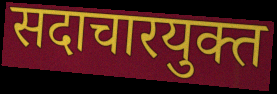
सदाचारयुक्त